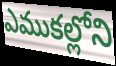
ఎముకల్లోని